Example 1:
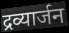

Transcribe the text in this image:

द्रव्यार्जन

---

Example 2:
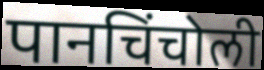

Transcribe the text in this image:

पानचिंचोली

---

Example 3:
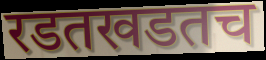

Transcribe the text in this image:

रडतखडतच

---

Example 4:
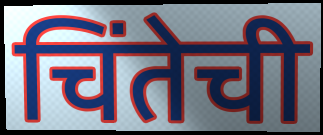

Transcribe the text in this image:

चिंतेची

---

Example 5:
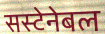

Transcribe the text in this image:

सस्टेनेबल